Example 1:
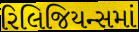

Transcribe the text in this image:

રિલિજિયન્સમાં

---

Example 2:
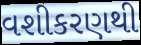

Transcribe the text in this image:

વશીકરણથી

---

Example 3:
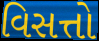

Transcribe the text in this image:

વિસત્તો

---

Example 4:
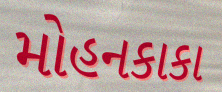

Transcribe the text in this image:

મોહનકાકા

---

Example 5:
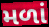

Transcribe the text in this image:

મળાં